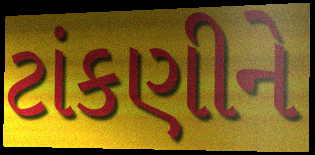
ટાંકણીને